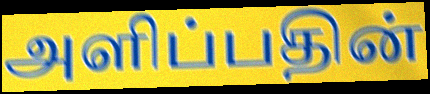
அளிப்பதின்